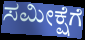
ಸಮೀಕ್ಷೆಗೆ